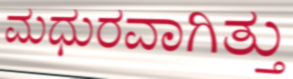
ಮಧುರವಾಗಿತ್ತು